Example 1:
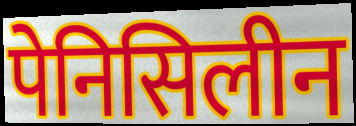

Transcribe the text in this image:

पेनिसिलीन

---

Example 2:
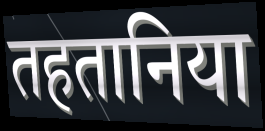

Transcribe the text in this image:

तहतानिया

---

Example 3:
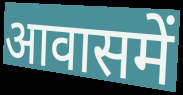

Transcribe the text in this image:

आवासमें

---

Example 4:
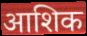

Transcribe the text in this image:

आशिक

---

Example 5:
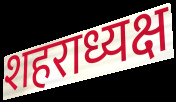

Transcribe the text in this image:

शहराध्यक्ष